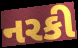
નરકી